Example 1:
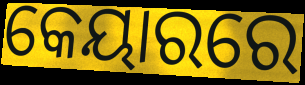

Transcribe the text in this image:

କେୟାରରେ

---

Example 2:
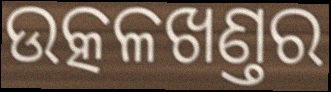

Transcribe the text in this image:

ଉତ୍କଳଖଣ୍ତର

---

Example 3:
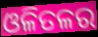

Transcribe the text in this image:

ଓଳିତଳର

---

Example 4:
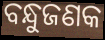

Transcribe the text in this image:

ବନ୍ଧୁଜଣକ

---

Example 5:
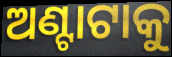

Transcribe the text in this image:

ଅଣ୍ଟାଟାକୁ